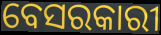
ବେସରକାରୀ